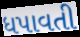
ધપાવતી